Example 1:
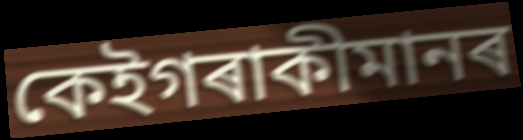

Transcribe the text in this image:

কেইগৰাকীমানৰ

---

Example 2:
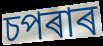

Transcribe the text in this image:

চপৰাৰ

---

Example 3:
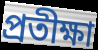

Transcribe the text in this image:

প্ৰতীক্ষা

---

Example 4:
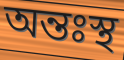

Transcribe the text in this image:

অন্তঃস্থ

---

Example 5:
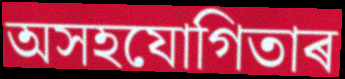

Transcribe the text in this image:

অসহযোগিতাৰ